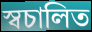
স্বচালিত